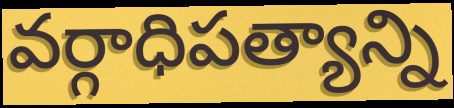
వర్గాధిపత్యాన్ని